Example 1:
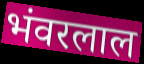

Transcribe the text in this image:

भंवरलाल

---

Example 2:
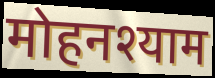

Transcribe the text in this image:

मोहनश्याम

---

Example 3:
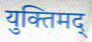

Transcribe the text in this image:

युक्तिमद्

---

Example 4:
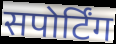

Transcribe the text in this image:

सपोर्टिंग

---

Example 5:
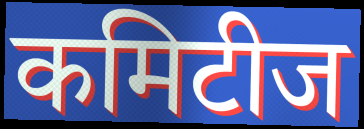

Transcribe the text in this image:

कमिटीज